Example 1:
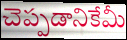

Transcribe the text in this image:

చెప్పడానికేమీ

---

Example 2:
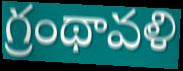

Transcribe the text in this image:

గ్రంథావళి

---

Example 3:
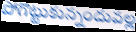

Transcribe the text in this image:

పోగొట్టుకున్నందువల్ల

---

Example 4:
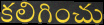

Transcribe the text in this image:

కలిగించు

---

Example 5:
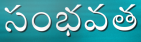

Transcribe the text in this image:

సంభవత